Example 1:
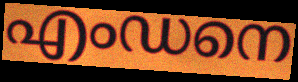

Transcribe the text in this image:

എംഡനെ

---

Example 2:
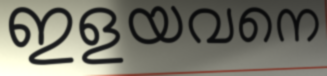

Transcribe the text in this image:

ഇളയവനെ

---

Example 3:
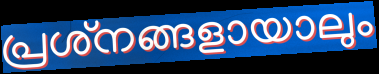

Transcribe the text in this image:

പ്രശ്‌നങ്ങളായാലും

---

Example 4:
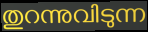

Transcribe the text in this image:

തുറന്നുവിടുന്ന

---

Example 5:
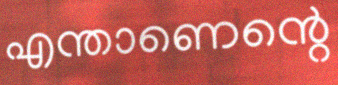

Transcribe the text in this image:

എന്താണെന്റെ